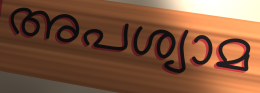
അപശ്യാമ